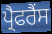
ਪ੍ਰੈਫਰੈਂਸ